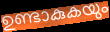
ഉണ്ടാകുകയും